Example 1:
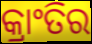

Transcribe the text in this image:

କ୍ରାଂତିର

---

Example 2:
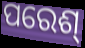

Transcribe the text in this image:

ପରେଶ୍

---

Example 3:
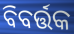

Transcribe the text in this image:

ବିବର୍ତ୍ତକ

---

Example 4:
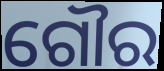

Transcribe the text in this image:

ଗୌର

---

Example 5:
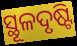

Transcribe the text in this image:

ସ୍ଥୂଳଦୃଷ୍ଟି